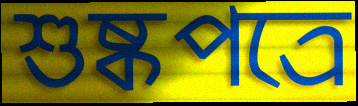
শুষ্কপত্রে